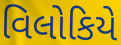
વિલોકિયે